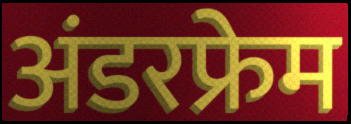
अंडरफ्रेम